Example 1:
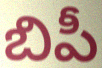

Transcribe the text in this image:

బిపీ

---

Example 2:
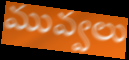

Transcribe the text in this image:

మువ్వలు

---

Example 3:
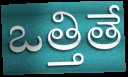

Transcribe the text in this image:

ఒత్తితే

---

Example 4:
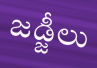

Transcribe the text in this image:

జడ్జీలు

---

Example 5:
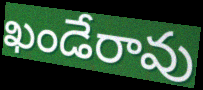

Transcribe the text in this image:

ఖండేరావు